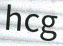
hcg